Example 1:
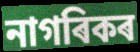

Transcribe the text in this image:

নাগৰিকৰ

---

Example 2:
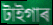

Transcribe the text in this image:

টাইগাৰ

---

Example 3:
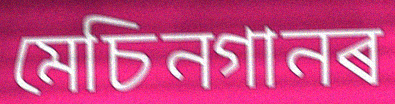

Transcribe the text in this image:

মেচিনগানৰ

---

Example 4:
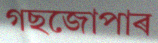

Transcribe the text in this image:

গছজোপাৰ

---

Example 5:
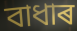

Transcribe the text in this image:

বাধাৰ